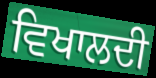
ਵਿਖਾਲਦੀ